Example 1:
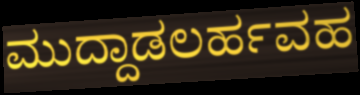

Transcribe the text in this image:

ಮುದ್ದಾಡಲರ್ಹವಹ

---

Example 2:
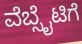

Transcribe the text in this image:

ವೆಬ್ಸೈಟಿಗೆ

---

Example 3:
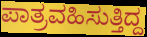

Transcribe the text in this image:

ಪಾತ್ರವಹಿಸುತ್ತಿದ್ದ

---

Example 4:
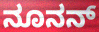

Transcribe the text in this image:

ನೂನನ್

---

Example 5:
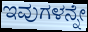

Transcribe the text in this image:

ಇವುಗಳನ್ನೇ